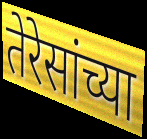
तेरेसांच्या